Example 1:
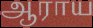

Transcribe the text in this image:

ஆராய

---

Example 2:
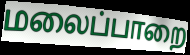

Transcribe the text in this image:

மலைப்பாறை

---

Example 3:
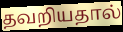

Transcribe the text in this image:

தவறியதால்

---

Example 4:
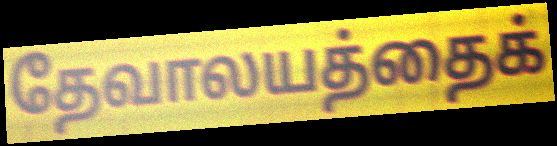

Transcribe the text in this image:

தேவாலயத்தைக்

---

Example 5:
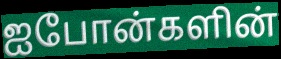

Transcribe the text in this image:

ஐபோன்களின்